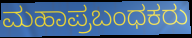
ಮಹಾಪ್ರಬಂಧಕರು